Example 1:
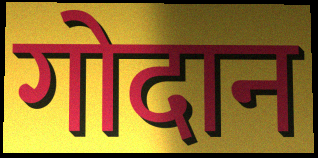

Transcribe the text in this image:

गोदान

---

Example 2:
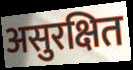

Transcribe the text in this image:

असुरक्षित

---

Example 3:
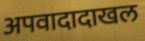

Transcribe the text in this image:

अपवादादाखल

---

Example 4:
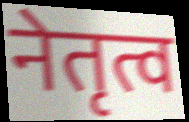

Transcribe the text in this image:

नेतृत्‍व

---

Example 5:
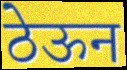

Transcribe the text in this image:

ठेऊन